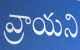
వ్రాయని